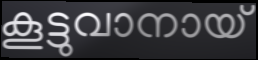
കൂട്ടുവാനായ്